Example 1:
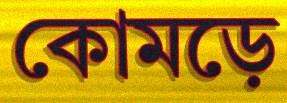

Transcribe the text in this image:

কোমড়ে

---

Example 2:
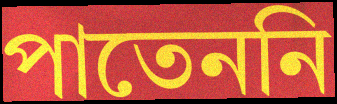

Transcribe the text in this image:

পাতেননি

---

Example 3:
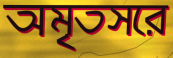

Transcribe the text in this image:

অমৃতসরে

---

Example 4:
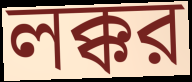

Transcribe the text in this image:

লক্কর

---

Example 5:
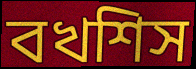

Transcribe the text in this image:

বখশিস